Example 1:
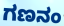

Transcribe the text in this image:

ಗಣನಂ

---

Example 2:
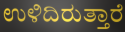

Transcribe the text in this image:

ಉಳಿದಿರುತ್ತಾರೆ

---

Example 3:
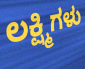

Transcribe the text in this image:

ಲಕ್ಷ್ಮಿಗಳು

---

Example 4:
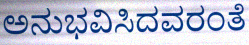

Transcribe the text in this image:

ಅನುಭವಿಸಿದವರಂತೆ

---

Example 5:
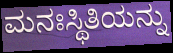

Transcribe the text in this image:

ಮನಃಸ್ಥಿತಿಯನ್ನು